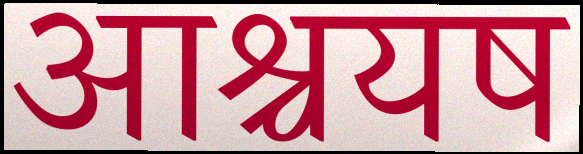
आश्चयष